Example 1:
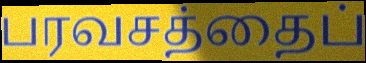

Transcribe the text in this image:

பரவசத்தைப்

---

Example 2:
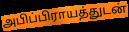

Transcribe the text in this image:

அபிப்பிராயத்துடன்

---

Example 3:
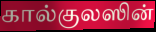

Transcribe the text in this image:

கால்குலஸின்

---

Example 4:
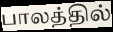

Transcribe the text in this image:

பாலத்தில்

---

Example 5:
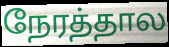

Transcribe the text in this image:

நேரத்தால